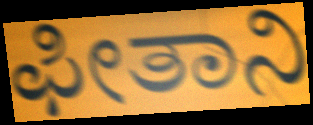
ಫೀತಾನಿ